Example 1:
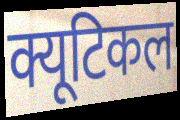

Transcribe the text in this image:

क्यूटिकल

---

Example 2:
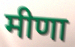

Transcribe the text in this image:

मीणा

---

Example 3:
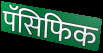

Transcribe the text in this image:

पॅसिफिक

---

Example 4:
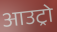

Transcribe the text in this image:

आउट्रो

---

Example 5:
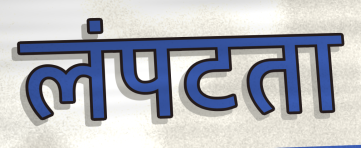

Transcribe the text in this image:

लंपटता